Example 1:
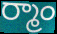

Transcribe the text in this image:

ర్మాం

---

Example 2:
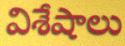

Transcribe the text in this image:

విశేషాలు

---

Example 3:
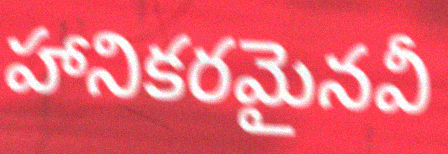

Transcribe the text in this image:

హానికరమైనవీ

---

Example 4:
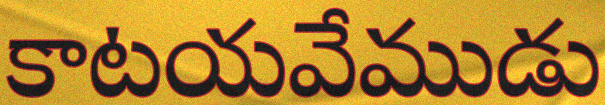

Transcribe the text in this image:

కాటయవేముడు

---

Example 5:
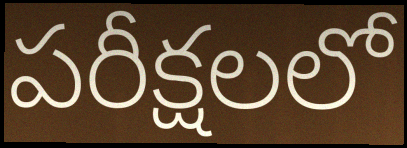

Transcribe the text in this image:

పరీక్షలలో